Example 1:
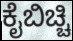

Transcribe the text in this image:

ಕೈಬಿಚ್ಚಿ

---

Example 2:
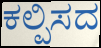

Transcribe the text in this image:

ಕಲ್ಪಿಸದ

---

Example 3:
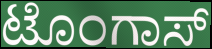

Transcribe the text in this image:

ಟೊಂಗಾಸ್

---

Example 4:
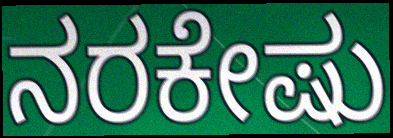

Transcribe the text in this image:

ನರಕೇಷು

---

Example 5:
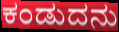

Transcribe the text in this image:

ಕಂಡುದನು